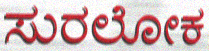
ಸುರಲೋಕ